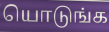
யொடுங்க